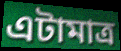
এটামাত্ৰ